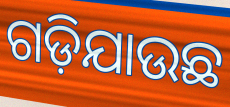
ଗଡ଼ିଯାଉଛ